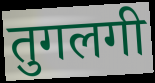
तुगलगी